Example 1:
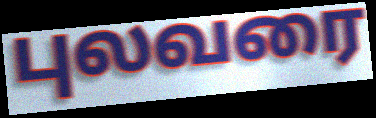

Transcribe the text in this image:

புலவரை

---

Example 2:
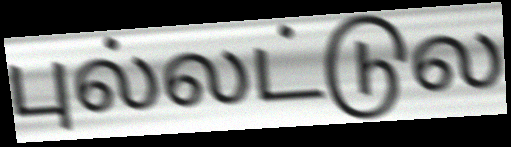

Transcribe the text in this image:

புல்லட்டுல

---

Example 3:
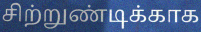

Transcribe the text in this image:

சிற்றுண்டிக்காக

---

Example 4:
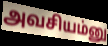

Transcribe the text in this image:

அவசியம்னு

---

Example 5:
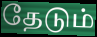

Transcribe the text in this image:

தேடும்